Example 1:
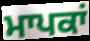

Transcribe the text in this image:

ਮਾਪਕਾਂ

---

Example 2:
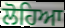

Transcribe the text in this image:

ਲੋਹਿਆ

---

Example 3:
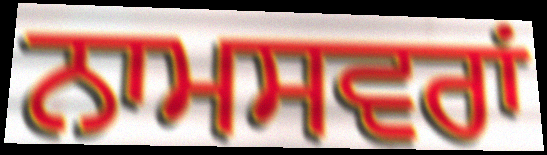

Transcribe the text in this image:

ਨਾਮਸਵਰਾਂ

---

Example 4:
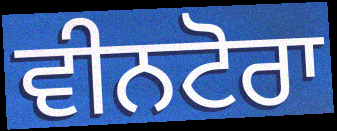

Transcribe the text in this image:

ਵੀਨਟੋਰਾ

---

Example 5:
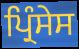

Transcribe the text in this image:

ਪ੍ਰਿੰਸੇਸ